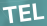
TEL